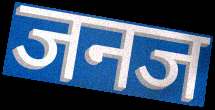
जनज